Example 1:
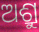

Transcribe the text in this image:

ଅଶ୍ରୁ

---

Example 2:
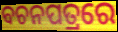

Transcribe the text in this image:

ବଚନପତ୍ରରେ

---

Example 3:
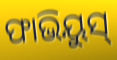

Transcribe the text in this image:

ଫାଭିୟୁସ୍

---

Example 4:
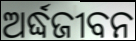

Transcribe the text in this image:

ଅର୍ଦ୍ଧଜୀବନ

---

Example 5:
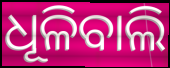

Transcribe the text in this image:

ଧୂଳିବାଲି